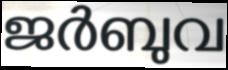
ജർബുവ